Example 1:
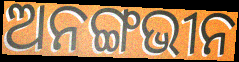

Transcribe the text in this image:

ଅନଙ୍ଗଭୀନ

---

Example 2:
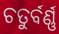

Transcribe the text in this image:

ଚତୁର୍ବର୍ଣ୍ଣ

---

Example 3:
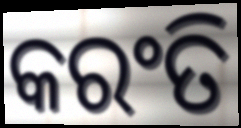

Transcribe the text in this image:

କରଂତି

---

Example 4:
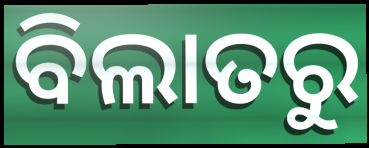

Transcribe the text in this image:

ବିଲାତରୁ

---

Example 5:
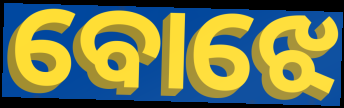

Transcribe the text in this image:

ବୋଝେ